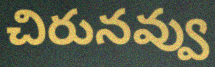
చిరునవ్వు